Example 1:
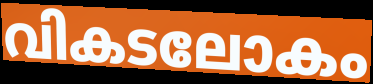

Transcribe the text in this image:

വികടലോകം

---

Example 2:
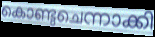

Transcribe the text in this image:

കൊണ്ടുചെന്നാക്കി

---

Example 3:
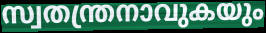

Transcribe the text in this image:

സ്വതന്ത്രനാവുകയും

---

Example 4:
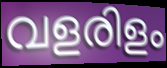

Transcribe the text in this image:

വളരിളം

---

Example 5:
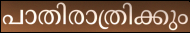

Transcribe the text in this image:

പാതിരാത്രിക്കും